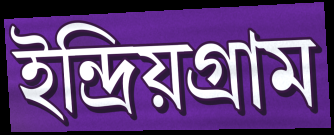
ইন্দ্রিয়গ্রাম